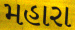
મહારા